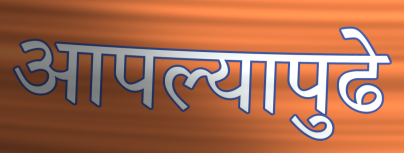
आपल्यापुढे